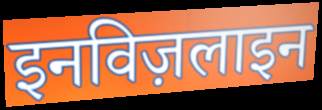
इनविज़लाइन